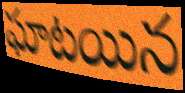
ఘాటయిన